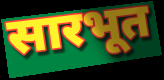
सारभूत